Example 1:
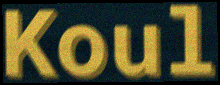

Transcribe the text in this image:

Koul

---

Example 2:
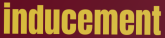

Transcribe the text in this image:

inducement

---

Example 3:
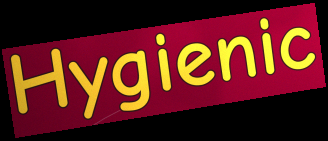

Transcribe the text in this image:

Hygienic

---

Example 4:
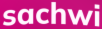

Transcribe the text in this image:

sachwi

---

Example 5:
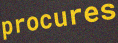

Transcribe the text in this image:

procures